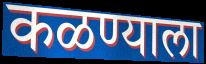
कळण्याला